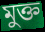
মুক্ত